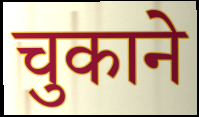
चुकाने